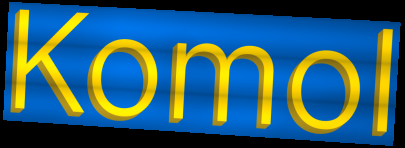
Komol